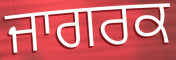
ਜਾਗਰਕ